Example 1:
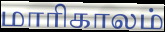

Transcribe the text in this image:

மாரிகாலம்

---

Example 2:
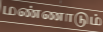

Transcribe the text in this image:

மண்ணாடும்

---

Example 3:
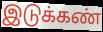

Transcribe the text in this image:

இடுக்கண்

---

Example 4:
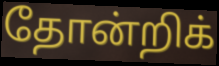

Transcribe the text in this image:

தோன்றிக்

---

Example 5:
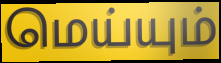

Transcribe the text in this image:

மெய்யும்